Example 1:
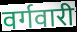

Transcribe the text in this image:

वर्गवारी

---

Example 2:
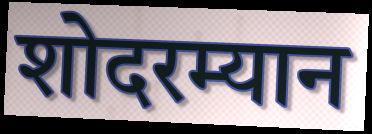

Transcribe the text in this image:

शोदरम्यान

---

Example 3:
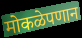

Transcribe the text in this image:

मोकळेपणान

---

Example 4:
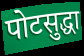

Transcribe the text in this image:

पोटसुद्धा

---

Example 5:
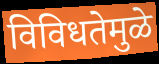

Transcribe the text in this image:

विविधतेमुळे